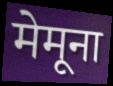
मेमूना